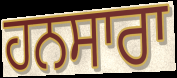
ਹਨਸਾਰਾ